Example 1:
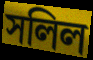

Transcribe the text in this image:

সলিল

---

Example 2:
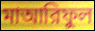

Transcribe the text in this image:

মাআরিফুল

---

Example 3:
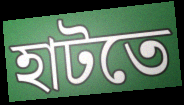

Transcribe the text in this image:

হাটতে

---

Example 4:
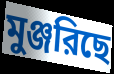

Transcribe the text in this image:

মুঞ্জরিছে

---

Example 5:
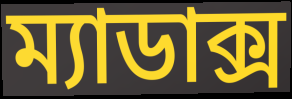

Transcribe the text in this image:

ম্যাডাক্স